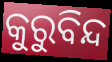
କୁରୁବିନ୍ଦ